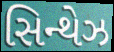
સિન્થેઝ